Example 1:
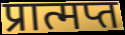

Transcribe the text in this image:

प्रात्मप्त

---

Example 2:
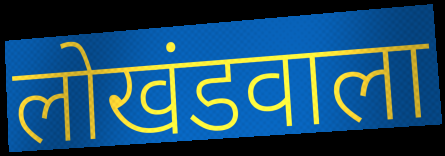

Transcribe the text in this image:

लोखंडवाला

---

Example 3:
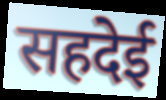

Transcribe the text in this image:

सहदेई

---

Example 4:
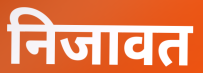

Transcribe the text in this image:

निजावत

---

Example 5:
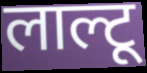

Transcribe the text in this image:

लाल्‍टू